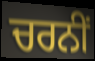
ਚਰਨੀਂ